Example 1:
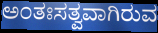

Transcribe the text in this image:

ಅಂತಃಸತ್ವವಾಗಿರುವ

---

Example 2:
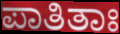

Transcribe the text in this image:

ಪಾತಿತಾಃ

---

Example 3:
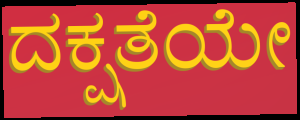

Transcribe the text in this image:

ದಕ್ಷತೆಯೇ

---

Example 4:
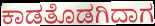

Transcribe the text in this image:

ಕಾಡತೊಡಗಿದಾಗ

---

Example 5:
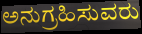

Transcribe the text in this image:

ಅನುಗ್ರಹಿಸುವರು